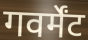
गवर्मेंट